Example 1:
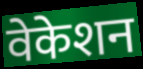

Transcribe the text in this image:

वेकेशन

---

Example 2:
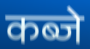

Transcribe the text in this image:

कब्जे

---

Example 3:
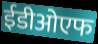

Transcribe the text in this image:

ईडीओएफ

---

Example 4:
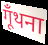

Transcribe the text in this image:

गूँथना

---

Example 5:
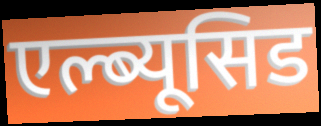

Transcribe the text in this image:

एल्ब्यूसिड